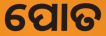
ପୋତ